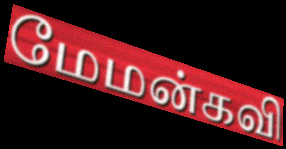
மேமன்கவி